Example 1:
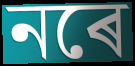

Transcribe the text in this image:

নৰে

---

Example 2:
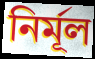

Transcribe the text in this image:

নিৰ্মূল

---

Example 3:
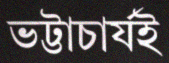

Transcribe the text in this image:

ভট্টাচাৰ্যই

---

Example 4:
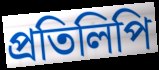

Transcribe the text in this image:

প্ৰতিলিপি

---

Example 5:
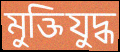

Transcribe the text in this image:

মুক্তিযুদ্ধ